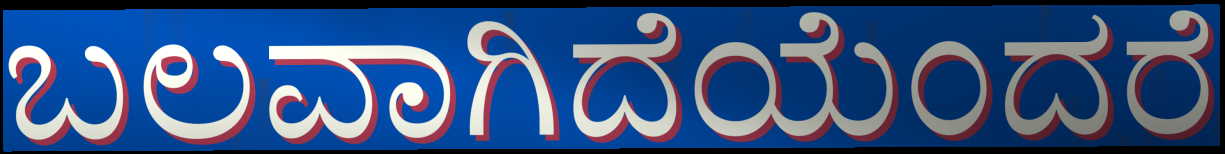
ಬಲವಾಗಿದೆಯೆಂದರೆ